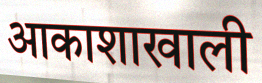
आकाशाखाली